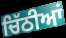
ਚਿੱਠੀਆਂ